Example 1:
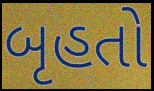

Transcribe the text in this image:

બૃહતો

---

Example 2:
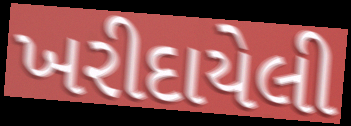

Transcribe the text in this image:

ખરીદાયેલી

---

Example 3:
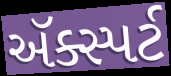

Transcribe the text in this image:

ઍક્સ્પર્ટ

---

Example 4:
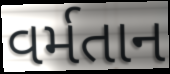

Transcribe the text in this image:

વર્મતાન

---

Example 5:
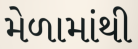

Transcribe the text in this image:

મેળામાંથી